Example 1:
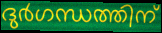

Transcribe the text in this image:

ദുർഗന്ധത്തിന്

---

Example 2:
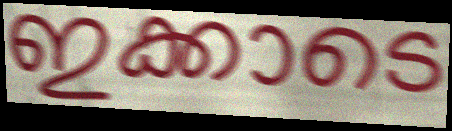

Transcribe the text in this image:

ഇക്കാടെ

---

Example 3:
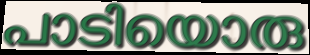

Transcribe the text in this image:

പാടിയൊരു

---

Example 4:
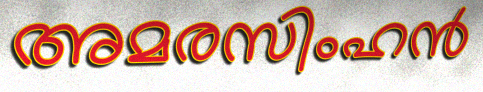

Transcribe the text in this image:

അമരസിംഹൻ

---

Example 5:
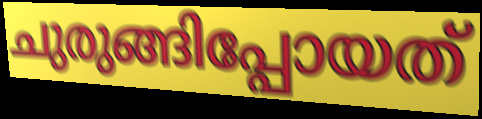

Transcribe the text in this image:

ചുരുങ്ങിപ്പോയത്